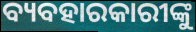
ବ୍ୟବହାରକାରୀଙ୍କୁ